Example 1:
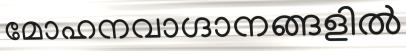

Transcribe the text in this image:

മോഹനവാഗ്ദാനങ്ങളിൽ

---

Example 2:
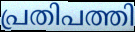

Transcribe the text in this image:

പ്രതിപത്തി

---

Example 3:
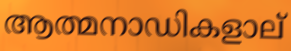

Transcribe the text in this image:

ആത്മനാഡികളാല്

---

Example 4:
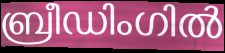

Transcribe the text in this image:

ബ്രീഡിംഗിൽ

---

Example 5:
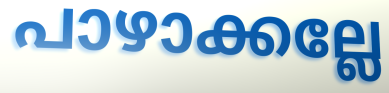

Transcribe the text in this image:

പാഴാക്കല്ലേ